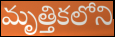
మృత్తికలోని